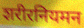
शरीरनियमन